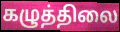
கழுத்திலை